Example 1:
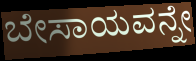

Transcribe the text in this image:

ಬೇಸಾಯವನ್ನೇ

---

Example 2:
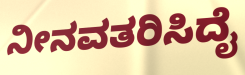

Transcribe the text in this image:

ನೀನವತರಿಸಿದೈ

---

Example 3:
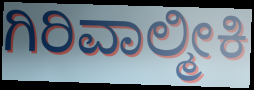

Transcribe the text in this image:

ಗಿರಿವಾಲ್ಮೀಕಿ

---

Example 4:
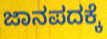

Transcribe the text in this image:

ಜಾನಪದಕ್ಕೆ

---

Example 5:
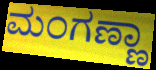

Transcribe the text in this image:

ಮಂಗಣ್ಣಾ